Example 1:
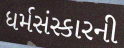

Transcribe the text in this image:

ધર્મસંસ્કારની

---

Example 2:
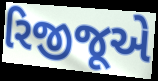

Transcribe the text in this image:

રિજીજૂએ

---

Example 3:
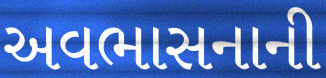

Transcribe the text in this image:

અવભાસનાની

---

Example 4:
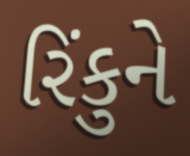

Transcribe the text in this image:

રિંકુને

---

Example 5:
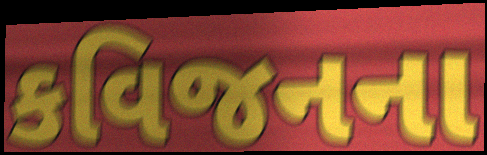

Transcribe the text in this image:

કવિજનના